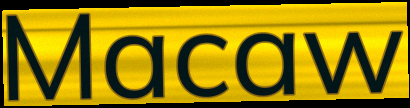
Macaw